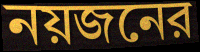
নয়জনের